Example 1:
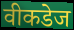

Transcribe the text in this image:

वीकडेज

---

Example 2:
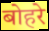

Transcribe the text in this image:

बोहरे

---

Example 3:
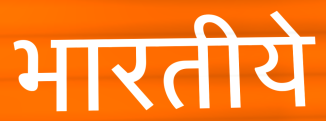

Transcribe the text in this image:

भारतीये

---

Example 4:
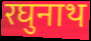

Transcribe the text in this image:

रघुनाथ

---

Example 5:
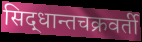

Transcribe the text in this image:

सिद्धान्तचक्रवर्ती